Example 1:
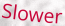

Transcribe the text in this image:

Slower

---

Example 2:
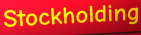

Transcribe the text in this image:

Stockholding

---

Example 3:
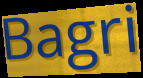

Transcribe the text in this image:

Bagri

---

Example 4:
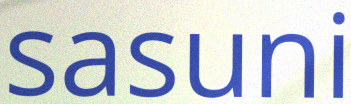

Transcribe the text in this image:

sasuni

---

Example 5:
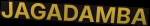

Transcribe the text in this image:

JAGADAMBA